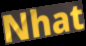
Nhat